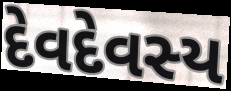
દેવદેવસ્ય